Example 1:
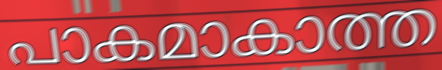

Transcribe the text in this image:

പാകമാകാത്ത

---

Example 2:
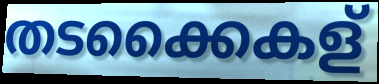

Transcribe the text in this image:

തടക്കൈകള്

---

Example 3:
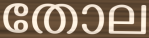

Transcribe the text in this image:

തോല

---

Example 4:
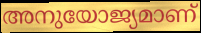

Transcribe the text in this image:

അനുയോജ്യമാണ്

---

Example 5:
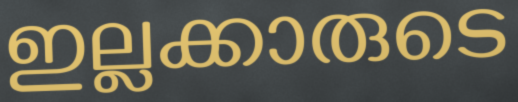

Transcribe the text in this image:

ഇല്ലക്കാരുടെ